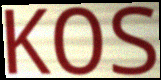
KOS